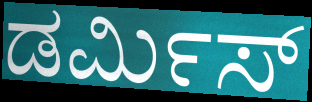
ಡರ್ಮಿಸ್